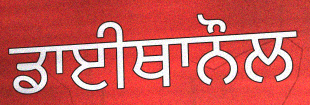
ਡਾਈਥਾਨੌਲ